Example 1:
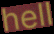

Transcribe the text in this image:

hell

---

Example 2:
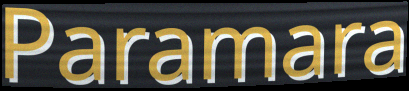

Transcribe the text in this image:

Paramara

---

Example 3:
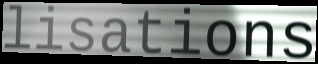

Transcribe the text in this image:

lisations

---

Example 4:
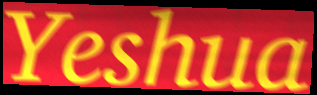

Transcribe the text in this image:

Yeshua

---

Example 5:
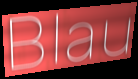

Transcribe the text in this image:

Blau